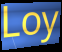
Loy